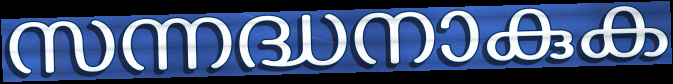
സന്നദ്ധനാകുക